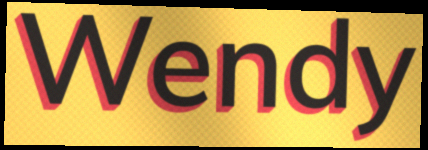
Wendy